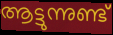
ആട്ടുന്നുണ്ട്